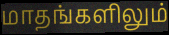
மாதங்களிலும்